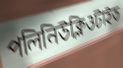
পলিনিউক্লিওটাইড